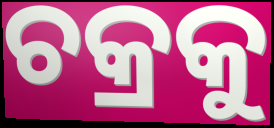
ଚକ୍ରକୁ